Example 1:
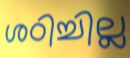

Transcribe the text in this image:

ശഠിച്ചില്ല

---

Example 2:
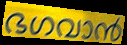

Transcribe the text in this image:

ഭഗവാൻ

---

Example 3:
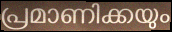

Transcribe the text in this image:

പ്രമാണിക്കയും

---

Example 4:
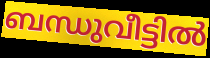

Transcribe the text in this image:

ബന്ധുവീട്ടിൽ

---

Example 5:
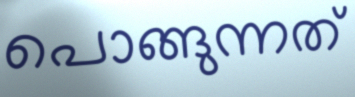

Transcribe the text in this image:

പൊങ്ങുന്നത്